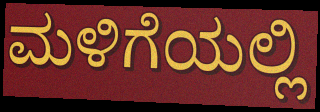
ಮಳಿಗೆಯಲ್ಲಿ